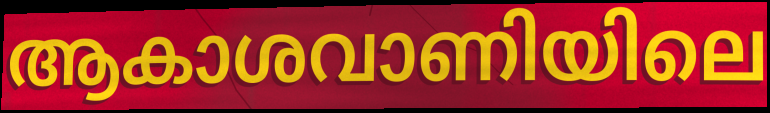
ആകാശവാണിയിലെ